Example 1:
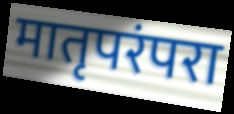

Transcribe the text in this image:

मातृपरंपरा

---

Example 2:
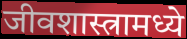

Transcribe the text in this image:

जीवशास्त्रामध्ये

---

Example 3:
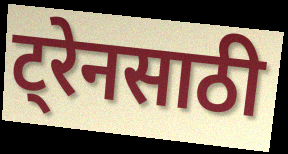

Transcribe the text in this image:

ट्रेनसाठी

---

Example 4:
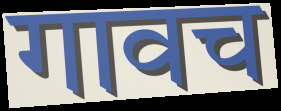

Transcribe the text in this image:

गावच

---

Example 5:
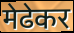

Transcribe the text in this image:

मेढेकर